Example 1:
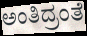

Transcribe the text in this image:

ಅಂತಿದ್ರಂತೆ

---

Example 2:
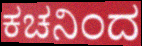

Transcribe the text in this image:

ಕಚನಿಂದ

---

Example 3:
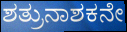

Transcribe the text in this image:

ಶತ್ರುನಾಶಕನೇ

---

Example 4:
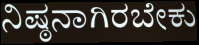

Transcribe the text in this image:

ನಿಷ್ಠನಾಗಿರಬೇಕು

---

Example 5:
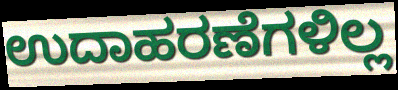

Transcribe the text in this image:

ಉದಾಹರಣೆಗಳಿಲ್ಲ